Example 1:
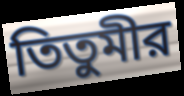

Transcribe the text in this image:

তিতুমীর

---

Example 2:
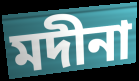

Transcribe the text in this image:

মদীনা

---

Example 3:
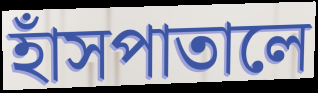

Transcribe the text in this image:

হাঁসপাতালে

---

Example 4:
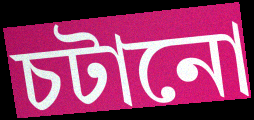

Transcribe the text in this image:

চটানো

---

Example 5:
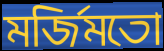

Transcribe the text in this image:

মর্জিমতো